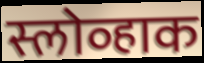
स्लोव्हाक